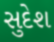
સુદેશ